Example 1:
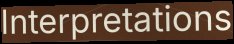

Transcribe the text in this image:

Interpretations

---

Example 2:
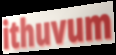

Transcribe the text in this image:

ithuvum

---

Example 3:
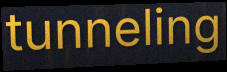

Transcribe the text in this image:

tunneling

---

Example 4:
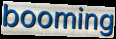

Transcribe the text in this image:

booming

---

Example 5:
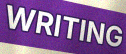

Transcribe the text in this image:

WRITING